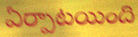
ఏర్పాటయింది